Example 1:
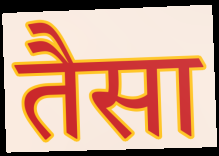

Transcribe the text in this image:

तैसा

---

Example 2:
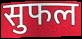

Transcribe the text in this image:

सुफल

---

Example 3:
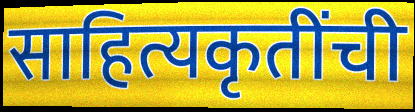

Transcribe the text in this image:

साहित्यकृतींची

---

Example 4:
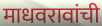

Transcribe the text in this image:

माधवरावांची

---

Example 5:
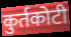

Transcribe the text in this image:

कुर्तकोटी